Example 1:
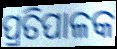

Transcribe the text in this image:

ପ୍ରତିପାଳକ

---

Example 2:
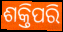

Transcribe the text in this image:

ଶକ୍ତିପରି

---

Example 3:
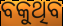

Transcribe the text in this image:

ବକୁଥିବ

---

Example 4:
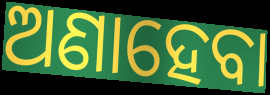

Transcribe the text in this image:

ଅଣାହେବା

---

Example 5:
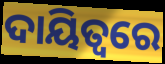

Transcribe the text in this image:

ଦାୟିତ୍ବରେ